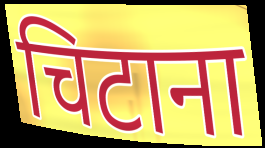
चिटाना